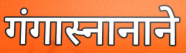
गंगास्नानाने